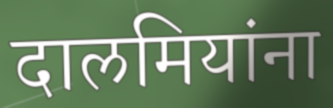
दालमियांना